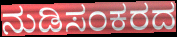
ನುಡಿಸಂಕರದ